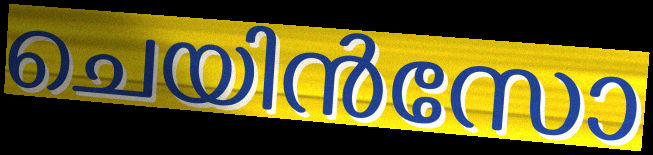
ചെയിൻസോ